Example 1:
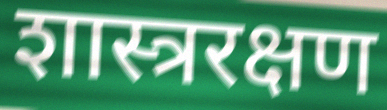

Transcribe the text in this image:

शास्त्ररक्षण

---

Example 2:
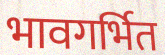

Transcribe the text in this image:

भावगर्भित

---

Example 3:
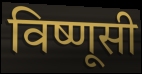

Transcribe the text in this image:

विष्णूसी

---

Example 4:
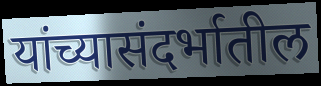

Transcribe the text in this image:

यांच्यासंदर्भातील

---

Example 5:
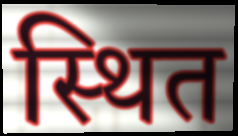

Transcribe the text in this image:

स्थित